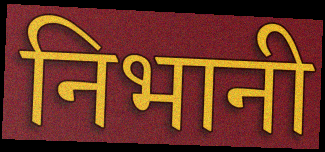
निभानी